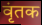
वृंतक